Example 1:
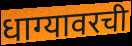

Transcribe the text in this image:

धाग्यावरची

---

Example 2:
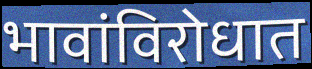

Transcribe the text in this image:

भावांविरोधात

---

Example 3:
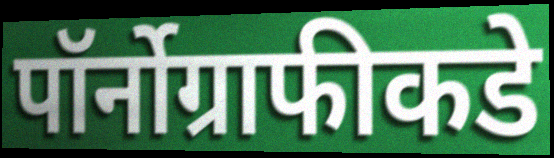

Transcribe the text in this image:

पॉर्नोग्राफीकडे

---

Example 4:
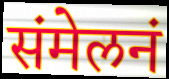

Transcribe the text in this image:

संमेलनं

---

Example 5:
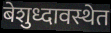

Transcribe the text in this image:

बेशुध्दावस्थेत